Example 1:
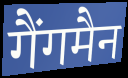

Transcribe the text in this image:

गैंगमैन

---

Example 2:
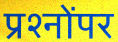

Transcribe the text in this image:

प्रश्नोंपर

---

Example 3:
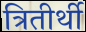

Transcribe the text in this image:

त्रितीर्थी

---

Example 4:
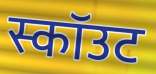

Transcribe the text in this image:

स्कॉउट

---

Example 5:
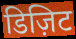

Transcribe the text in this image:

डिज़िट